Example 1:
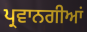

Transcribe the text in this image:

ਪ੍ਰਵਾਨਗੀਆਂ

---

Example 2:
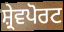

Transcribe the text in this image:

ਸ਼੍ਰੇਵਪੋਰਟ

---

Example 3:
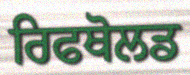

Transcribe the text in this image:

ਰਿਫਥੋਲਡ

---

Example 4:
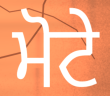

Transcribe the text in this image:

ਮੋਟੇ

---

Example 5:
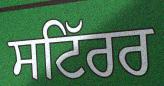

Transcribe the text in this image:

ਸਟਿੱਰਰ